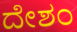
ದೇಶಂ